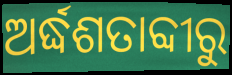
ଅର୍ଦ୍ଧଶତାବ୍ଦୀରୁ